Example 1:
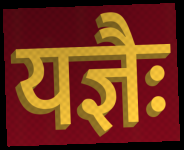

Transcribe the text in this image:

यज्ञैः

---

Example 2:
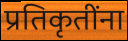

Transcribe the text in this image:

प्रतिकृतींना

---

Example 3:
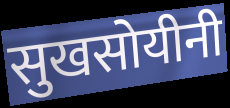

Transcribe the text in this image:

सुखसोयीनी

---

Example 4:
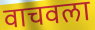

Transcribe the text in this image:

वाचवला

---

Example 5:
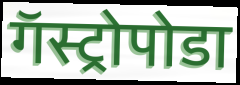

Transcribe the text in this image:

गॅस्ट्रोपोडा